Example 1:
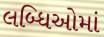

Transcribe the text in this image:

લબ્ધિઓમાં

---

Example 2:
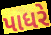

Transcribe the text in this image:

પાધરે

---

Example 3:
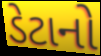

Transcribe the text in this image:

ડેટાનો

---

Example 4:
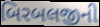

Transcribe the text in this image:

બિરબલજીની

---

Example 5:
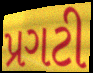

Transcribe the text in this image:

પ્રગટી